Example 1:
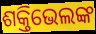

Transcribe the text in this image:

ଶକ୍ତିଭେଲଙ୍କ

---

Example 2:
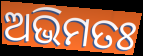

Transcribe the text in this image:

ଅଭିମତଃ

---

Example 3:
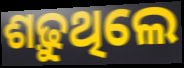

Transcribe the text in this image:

ଶଢ଼ୁଥିଲେ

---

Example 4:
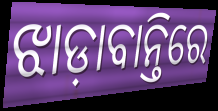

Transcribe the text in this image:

ଝାଡ଼ାବାନ୍ତିରେ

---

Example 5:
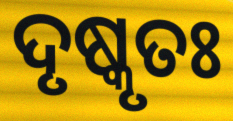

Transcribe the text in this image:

ଦୃଷ୍କୃତଃ